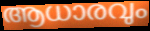
ആധാരവും